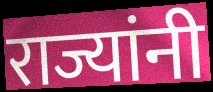
राज्यांनी